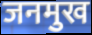
जनमुख